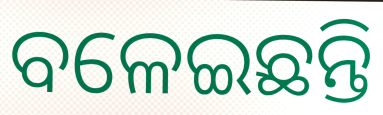
ବଳେଇଛନ୍ତି